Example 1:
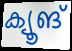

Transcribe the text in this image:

ക്യൂങ്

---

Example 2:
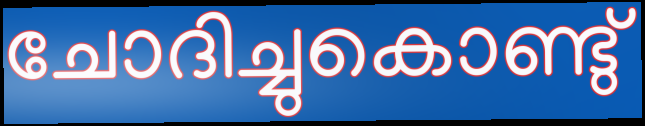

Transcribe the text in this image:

ചോദിച്ചുകൊണ്ടു്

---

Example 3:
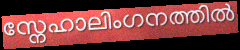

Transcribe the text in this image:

സ്നേഹാലിംഗനത്തിൽ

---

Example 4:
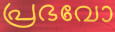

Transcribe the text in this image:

പ്രഭവോ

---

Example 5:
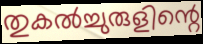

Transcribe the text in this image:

തുകൽച്ചുരുളിന്റെ